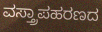
ವಸ್ತ್ರಾಪಹರಣದ